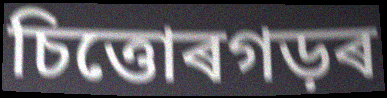
চিত্তোৰগড়ৰ